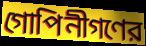
গোপিনীগণের